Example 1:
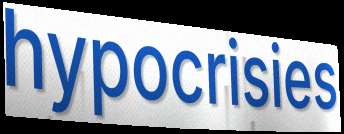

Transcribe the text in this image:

hypocrisies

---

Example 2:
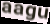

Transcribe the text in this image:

aagu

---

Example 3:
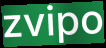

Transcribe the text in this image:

zvipo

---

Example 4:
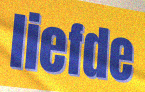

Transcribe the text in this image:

liefde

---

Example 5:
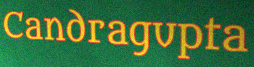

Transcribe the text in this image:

Candragupta